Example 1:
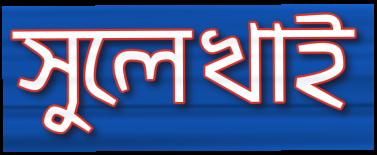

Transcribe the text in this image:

সুলেখাই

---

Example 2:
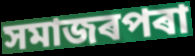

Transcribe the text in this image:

সমাজৰপৰা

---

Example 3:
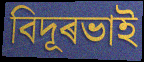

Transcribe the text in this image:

বিদূৰভাই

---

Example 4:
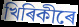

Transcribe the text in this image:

খিৰিকীৰে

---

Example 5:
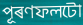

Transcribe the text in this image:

পূৰণফলটো